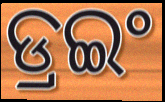
ଡ୍ରଇଂ